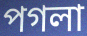
পগলা